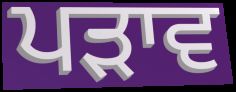
ਪੜਾਵ